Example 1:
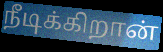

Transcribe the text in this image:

நீடிக்கிறான்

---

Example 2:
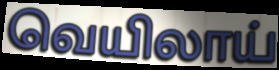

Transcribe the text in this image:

வெயிலாய்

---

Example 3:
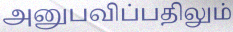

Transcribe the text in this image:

அனுபவிப்பதிலும்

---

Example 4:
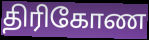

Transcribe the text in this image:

திரிகோண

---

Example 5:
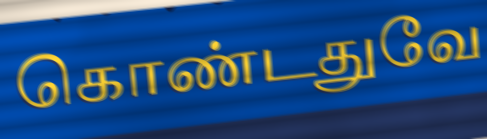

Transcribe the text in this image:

கொண்டதுவே